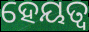
ହେୟତ୍ୱ